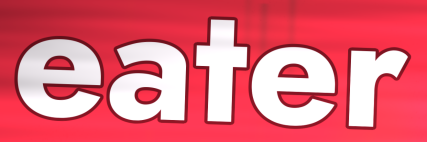
eater